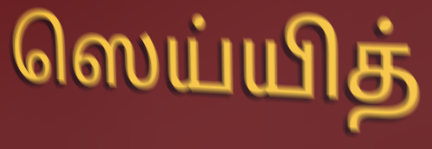
ஸெய்யித்